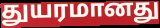
துயரமானது